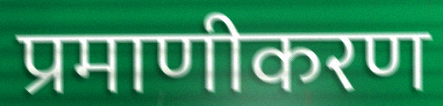
प्रमाणीकरण